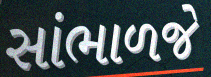
સાંભાળજે